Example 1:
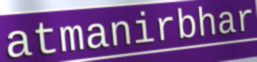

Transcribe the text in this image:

atmanirbhar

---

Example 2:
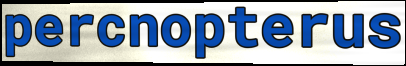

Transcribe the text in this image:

percnopterus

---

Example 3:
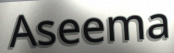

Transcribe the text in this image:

Aseema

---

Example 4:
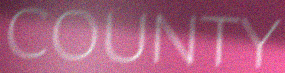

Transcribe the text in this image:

COUNTY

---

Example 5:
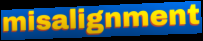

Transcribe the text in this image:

misalignment